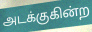
அடக்குகின்ற